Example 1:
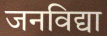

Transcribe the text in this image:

जनविद्या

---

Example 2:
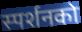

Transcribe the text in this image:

स्पर्शनको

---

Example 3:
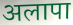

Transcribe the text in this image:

अलापा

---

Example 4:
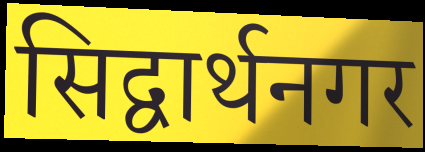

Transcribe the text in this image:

सिद्वार्थनगर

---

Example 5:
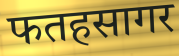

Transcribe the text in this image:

फतहसागर